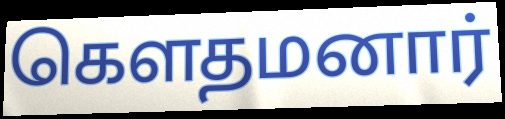
கெளதமனார்